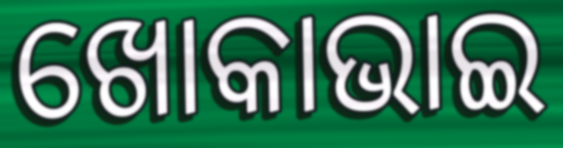
ଖୋକାଭାଇ